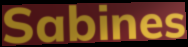
Sabines